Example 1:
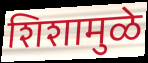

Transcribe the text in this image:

शिशामुळे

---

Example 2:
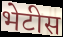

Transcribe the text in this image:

भेटीस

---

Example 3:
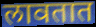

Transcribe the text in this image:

लावतात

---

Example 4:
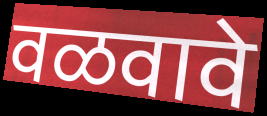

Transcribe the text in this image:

वळवावे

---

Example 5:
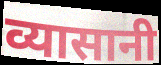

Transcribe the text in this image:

व्यासानी